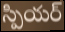
స్పియర్